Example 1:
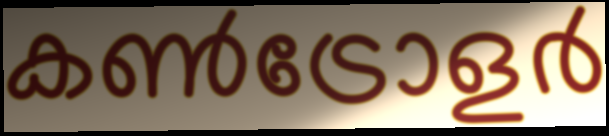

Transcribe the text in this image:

കൺട്രോളർ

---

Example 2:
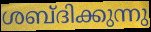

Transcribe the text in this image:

ശബ്ദിക്കുന്നു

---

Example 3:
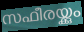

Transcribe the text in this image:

സഫീരയ്ക്കും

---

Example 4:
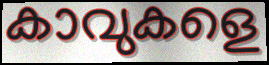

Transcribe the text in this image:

കാവുകളെ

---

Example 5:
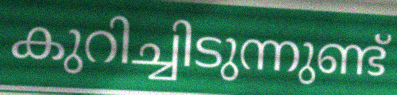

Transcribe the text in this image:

കുറിച്ചിടുന്നുണ്ട്